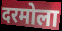
दरमोला